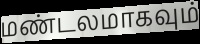
மண்டலமாகவும்